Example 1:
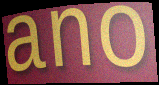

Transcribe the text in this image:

ano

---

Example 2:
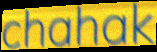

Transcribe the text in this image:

chahak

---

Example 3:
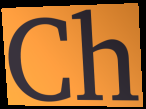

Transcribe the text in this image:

Ch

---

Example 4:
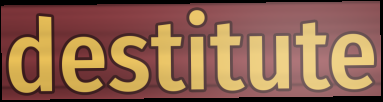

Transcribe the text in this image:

destitute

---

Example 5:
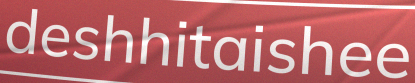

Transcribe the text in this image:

deshhitaishee